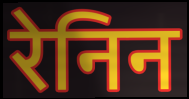
रेनिन